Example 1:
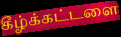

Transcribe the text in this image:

கீழ்க்கட்டளை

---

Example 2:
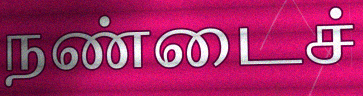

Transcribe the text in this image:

நண்டைச்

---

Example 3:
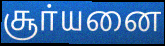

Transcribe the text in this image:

சூர்யனை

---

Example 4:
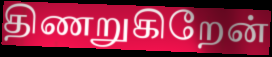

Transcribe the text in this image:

திணறுகிறேன்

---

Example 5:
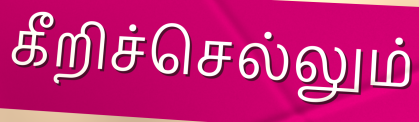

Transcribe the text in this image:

கீறிச்செல்லும்